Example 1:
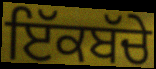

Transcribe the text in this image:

ਇੱਕਬੱਚੇ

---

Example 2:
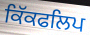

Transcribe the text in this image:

ਕਿੱਕਫਲਿਪ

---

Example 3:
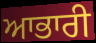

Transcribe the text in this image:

ਆਭਾਰੀ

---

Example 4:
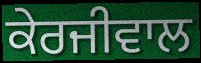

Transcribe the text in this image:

ਕੇਰਜੀਵਾਲ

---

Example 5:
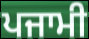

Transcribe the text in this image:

ਪਜਾਮੀ